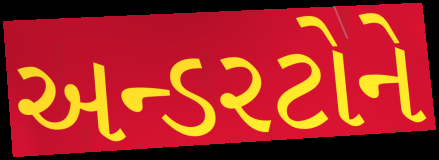
અન્ડરટોને